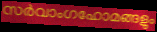
സർവാംഗഹോമങ്ങളും